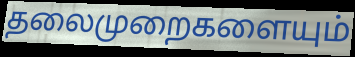
தலைமுறைகளையும்